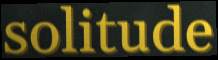
solitude